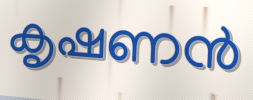
കൃഷണൻ